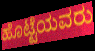
ಹೊಟ್ಟೆಯವರು